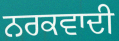
ਨਰਕਵਾਦੀ